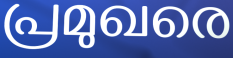
പ്രമുഖരെ